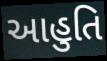
આહુતિ